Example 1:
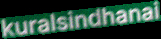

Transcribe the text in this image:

kuralsindhanai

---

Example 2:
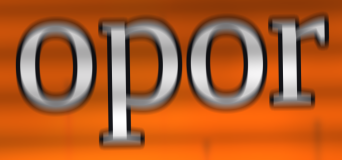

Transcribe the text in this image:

opor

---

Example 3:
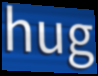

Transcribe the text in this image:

hug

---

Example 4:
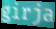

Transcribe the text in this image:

girja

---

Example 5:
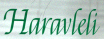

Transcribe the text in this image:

Haravleli